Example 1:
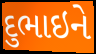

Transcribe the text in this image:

દુભાઇને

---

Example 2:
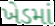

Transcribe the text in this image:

ખેડમાં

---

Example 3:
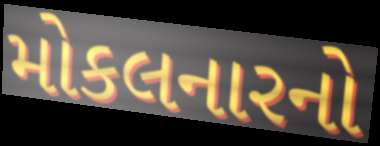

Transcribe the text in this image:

મોકલનારનો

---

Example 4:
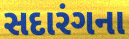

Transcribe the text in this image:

સદારંગના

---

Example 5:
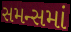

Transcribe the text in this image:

સમન્સમાં